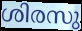
ശിരസു